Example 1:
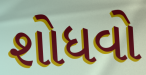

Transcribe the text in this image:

શોધવો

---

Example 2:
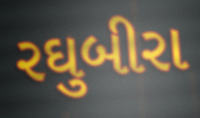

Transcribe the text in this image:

રઘુબીરા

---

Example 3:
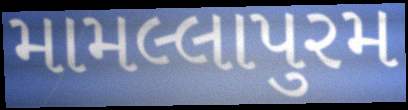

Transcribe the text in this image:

મામલ્લાપુરમ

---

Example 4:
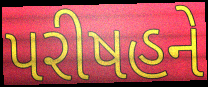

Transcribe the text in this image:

પરીષહને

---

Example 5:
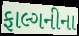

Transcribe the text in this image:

ફાલ્ગનીના